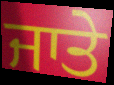
ਜਾਤੇ